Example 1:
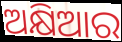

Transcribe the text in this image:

ଅକ୍ଷିଆର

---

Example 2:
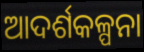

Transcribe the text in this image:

ଆଦର୍ଶକଳ୍ପନା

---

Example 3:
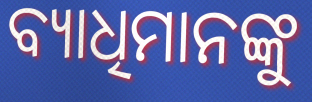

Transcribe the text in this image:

ବ୍ୟାଧିମାନଙ୍କୁ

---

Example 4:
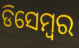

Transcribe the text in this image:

ଡିସେମ୍ୱର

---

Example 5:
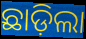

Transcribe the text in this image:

ଛାଡ଼ିଲା